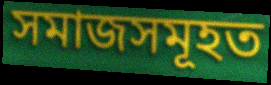
সমাজসমূহত